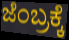
ಜೆಂಬ್ರಕ್ಕೆ